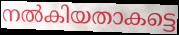
നൽകിയതാകട്ടെ